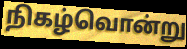
நிகழ்வொன்று